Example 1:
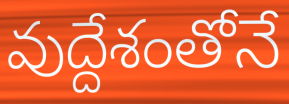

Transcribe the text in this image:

వుద్దేశంతోనే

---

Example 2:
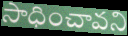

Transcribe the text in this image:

సాధించావని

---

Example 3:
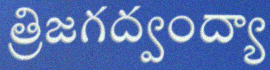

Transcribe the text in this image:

త్రిజగద్వంద్యా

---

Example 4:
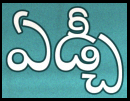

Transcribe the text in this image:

ఏడ్చీ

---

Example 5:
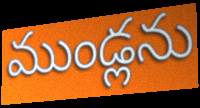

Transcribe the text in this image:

ముండ్లను